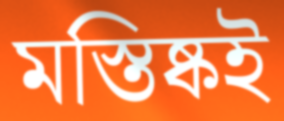
মস্তিষ্কই